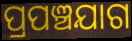
ପ୍ରପଞ୍ଚଯାଗ